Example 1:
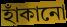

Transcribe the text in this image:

হাঁকানো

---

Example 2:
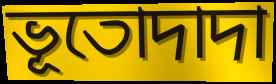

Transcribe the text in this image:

ভূতোদাদা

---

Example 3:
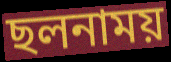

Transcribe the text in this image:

ছলনাময়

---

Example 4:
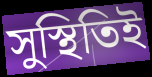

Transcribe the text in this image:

সুস্থিতিই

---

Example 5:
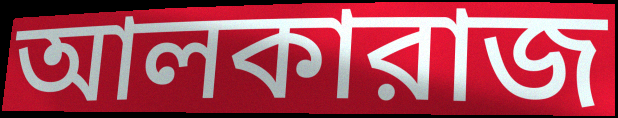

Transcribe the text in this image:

আলকারাজ